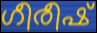
ഗീരീഷ്